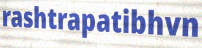
rashtrapatibhvn